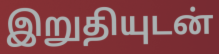
இறுதியுடன்